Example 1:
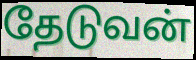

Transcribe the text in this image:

தேடுவன்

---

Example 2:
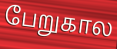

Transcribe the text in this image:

பேறுகால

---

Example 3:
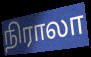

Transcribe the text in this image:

நிராலா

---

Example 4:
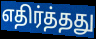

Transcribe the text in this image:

எதிர்த்தது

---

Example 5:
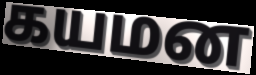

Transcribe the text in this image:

கயமன